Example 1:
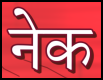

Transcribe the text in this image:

नेक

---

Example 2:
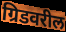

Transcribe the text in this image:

ग्रिडवरील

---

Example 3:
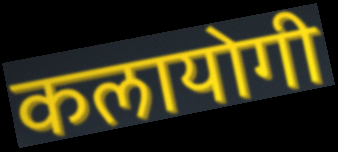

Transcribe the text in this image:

कलायोगी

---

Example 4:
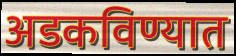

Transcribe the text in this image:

अडकविण्यात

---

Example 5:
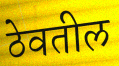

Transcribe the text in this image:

ठेवतील